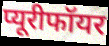
प्यूरीफॉयर